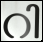
റി